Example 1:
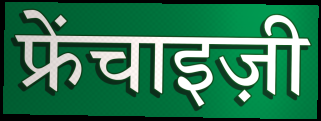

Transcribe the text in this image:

फ्रेंचाइज़ी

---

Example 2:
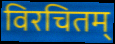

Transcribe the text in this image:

विरचितम्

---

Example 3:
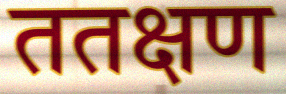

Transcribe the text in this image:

ततक्षण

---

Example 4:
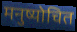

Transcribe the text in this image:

मनुष्योचित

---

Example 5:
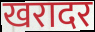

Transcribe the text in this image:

खरादर